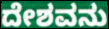
ದೇಶವನು